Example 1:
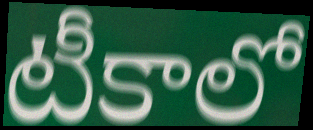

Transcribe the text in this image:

టీకాలో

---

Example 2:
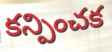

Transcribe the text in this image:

కన్పించక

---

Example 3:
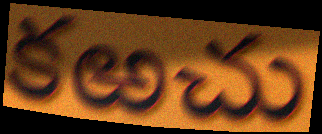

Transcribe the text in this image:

కఱచు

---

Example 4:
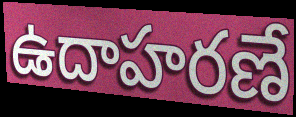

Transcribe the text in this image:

ఉదాహరణే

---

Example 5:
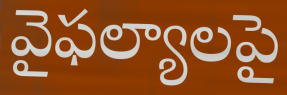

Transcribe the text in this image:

వైఫల్యాలపై